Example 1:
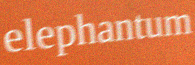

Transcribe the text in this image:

elephantum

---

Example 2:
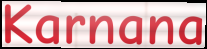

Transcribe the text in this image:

Karnana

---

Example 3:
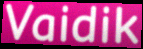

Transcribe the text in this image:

Vaidik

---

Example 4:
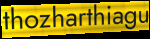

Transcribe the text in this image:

thozharthiagu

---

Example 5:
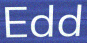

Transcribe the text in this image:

Edd